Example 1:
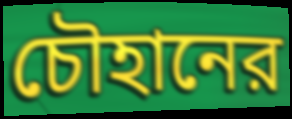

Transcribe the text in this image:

চৌহানের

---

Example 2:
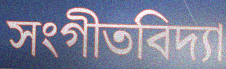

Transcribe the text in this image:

সংগীতবিদ্যা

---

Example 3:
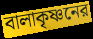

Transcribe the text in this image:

বালাকৃষ্ণনের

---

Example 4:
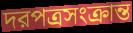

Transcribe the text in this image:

দরপত্রসংক্রান্ত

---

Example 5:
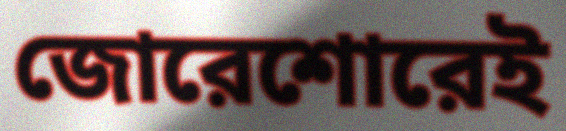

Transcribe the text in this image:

জোরেশোরেই